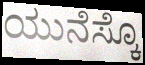
ಯುನೆಸ್ಕೊ